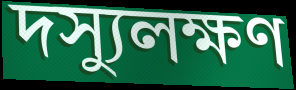
দস্যুলক্ষণ